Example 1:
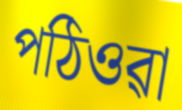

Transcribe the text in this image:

পঠিওৱা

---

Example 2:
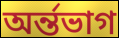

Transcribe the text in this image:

অৰ্ন্তভাগ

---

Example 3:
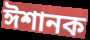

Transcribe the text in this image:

ঈশানক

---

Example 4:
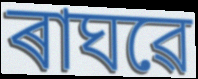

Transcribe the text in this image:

ৰাঘৱে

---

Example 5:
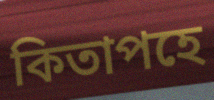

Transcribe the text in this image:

কিতাপহে